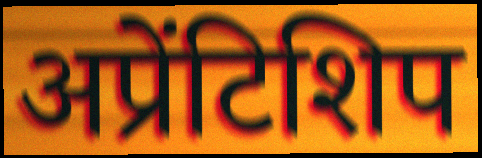
अप्रेंटिशिप